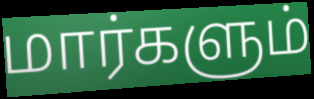
மார்களும்